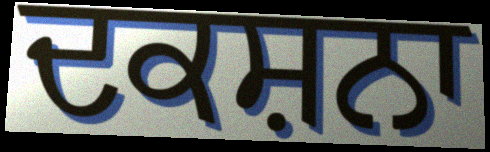
ਦਕਸ਼ਨਾ